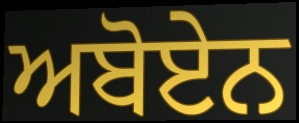
ਅਬੋਏਨ